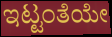
ಇಟ್ಟಂತೆಯೇ